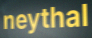
neythal